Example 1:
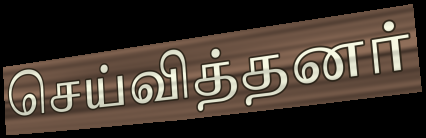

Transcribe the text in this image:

செய்வித்தனர்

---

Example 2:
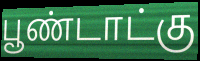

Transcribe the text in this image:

பூண்டாட்கு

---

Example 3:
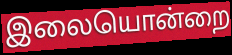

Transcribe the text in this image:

இலையொன்றை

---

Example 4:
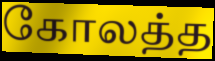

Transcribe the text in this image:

கோலத்த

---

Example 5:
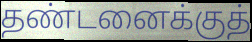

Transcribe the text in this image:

தண்டனைக்குத்